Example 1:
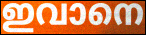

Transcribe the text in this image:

ഇവാനെ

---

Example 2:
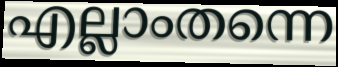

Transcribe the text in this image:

എല്ലാംതന്നെ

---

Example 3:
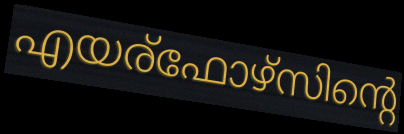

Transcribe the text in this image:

എയര്ഫോഴ്സിന്റെ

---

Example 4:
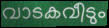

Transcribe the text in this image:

വാടകവീടും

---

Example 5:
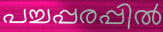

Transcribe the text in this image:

പച്ചപ്പരപ്പിൽ